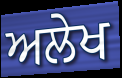
ਅਲੇਖ